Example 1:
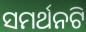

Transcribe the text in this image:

ସମର୍ଥନଟି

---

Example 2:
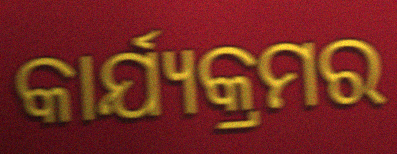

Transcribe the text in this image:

କାର୍ଯ୍ୟକ୍ରମର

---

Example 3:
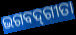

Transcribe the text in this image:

ଭଗବଦ୍‍ଗୀତା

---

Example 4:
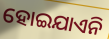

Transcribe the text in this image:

ହୋଇଯାଏନି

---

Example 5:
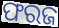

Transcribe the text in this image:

ଫରଜ